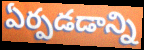
ఏర్పడడాన్ని